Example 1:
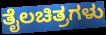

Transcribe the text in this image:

ತೈಲಚಿತ್ರಗಳು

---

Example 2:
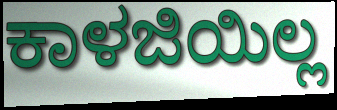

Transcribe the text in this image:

ಕಾಳಜಿಯಿಲ್ಲ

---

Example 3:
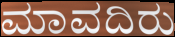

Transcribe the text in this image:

ಮಾವದಿರು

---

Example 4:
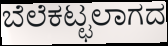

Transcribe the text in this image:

ಬೆಲೆಕಟ್ಟಲಾಗದ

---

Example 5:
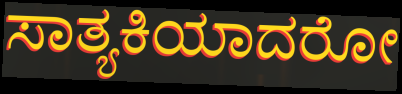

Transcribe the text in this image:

ಸಾತ್ಯಕಿಯಾದರೋ